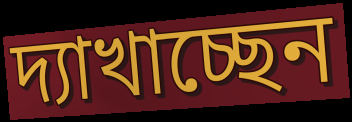
দ্যাখাচ্ছেন